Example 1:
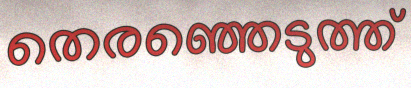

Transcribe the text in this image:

തെരഞ്ഞെടുത്ത്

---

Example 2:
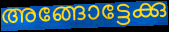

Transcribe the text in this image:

അങ്ങോട്ടേക്കു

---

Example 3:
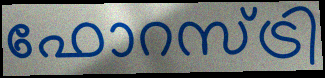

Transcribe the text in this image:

ഫോറസ്ട്രി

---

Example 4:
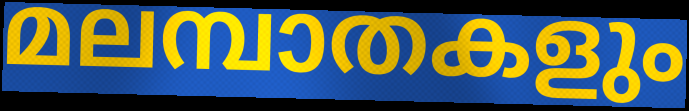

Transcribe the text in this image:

മലമ്പാതകളും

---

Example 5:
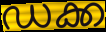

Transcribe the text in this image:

ഡക്ക